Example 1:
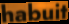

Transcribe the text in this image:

habuit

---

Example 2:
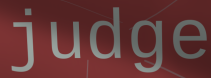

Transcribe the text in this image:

judge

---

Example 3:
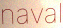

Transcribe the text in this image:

naval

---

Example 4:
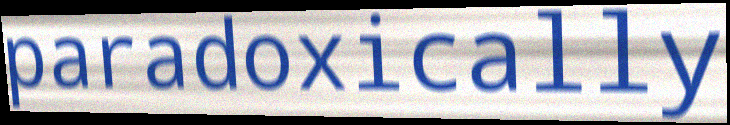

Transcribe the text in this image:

paradoxically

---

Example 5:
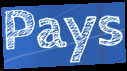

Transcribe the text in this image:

Pays